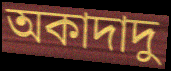
অকাদাদু